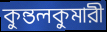
কুন্তলকুমারী